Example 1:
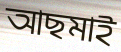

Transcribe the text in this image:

আছমাই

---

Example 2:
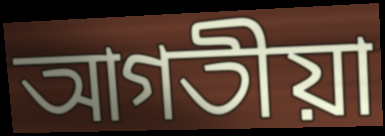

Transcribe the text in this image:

আগতীয়া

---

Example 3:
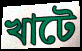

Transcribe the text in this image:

খাটে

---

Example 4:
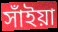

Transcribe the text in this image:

সাঁইয়া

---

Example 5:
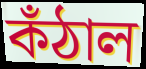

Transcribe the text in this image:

কঁঠাল